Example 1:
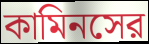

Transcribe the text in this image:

কামিনসের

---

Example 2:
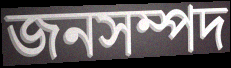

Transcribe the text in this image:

জনসম্পদ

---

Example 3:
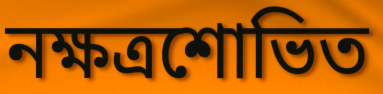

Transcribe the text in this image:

নক্ষত্রশোভিত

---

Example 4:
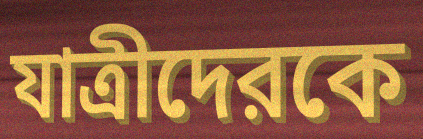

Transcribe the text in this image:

যাত্রীদেরকে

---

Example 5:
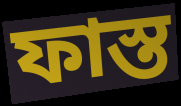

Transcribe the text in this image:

ফাস্ত